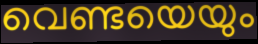
വെണ്ടയെയും